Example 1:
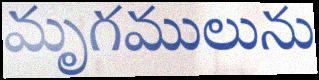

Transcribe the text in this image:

మృగములును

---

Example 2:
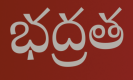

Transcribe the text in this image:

భద్రత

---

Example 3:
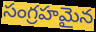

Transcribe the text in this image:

సంగ్రహమైన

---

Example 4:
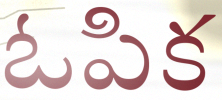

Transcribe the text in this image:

ఓపిక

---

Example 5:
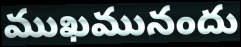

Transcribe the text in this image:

ముఖమునందు